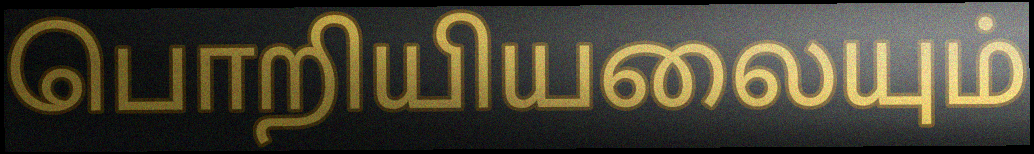
பொறியியலையும்